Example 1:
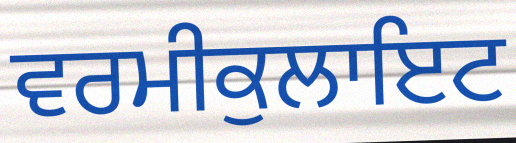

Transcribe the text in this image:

ਵਰਮੀਕੁਲਾਇਟ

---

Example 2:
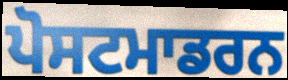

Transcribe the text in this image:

ਪੋਸਟਮਾਡਰਨ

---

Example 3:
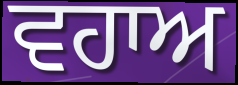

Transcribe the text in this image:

ਵਹਾਅ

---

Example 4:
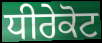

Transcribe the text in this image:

ਧੀਰੇਕੋਟ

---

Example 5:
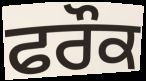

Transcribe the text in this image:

ਫਰੌਕ